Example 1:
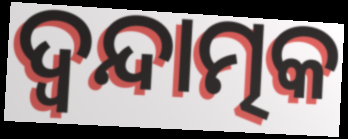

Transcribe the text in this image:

ଦ୍ୱନ୍ଦାତ୍ମକ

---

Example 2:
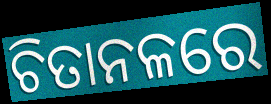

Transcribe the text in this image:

ଚିତାନଳରେ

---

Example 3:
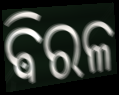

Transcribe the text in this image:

ଵିରଳ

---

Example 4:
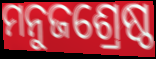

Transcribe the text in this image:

ମନୁଜଶ୍ରେଷ୍ଠ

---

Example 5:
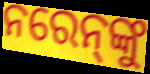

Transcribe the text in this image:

ନରେନ୍‌ଙ୍କୁ